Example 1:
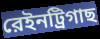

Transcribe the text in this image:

রেইনট্রিগাছ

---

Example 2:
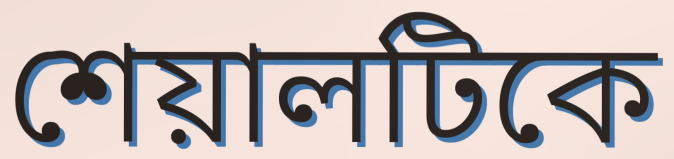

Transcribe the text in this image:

শেয়ালটিকে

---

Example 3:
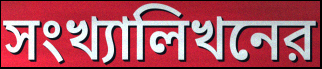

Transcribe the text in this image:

সংখ্যালিখনের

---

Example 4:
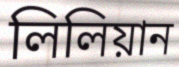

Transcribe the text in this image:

লিলিয়ান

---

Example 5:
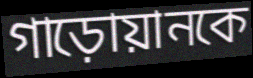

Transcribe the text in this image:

গাড়োয়ানকে